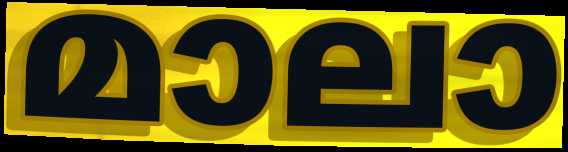
മാലാ